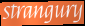
strangury